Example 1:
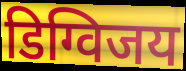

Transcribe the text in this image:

डिग्विजय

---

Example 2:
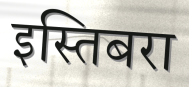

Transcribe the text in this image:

इस्तिबरा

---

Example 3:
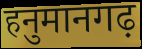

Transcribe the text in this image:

हनुमानगढ़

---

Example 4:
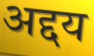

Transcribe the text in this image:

अद्दय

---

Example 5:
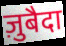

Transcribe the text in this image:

ज़ुबैदा